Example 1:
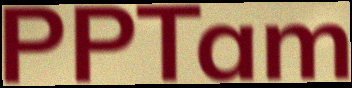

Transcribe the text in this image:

PPTam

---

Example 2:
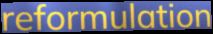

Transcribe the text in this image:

reformulation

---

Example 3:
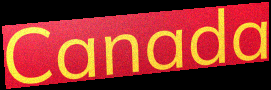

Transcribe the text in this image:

Canada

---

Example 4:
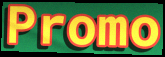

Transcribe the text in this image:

Promo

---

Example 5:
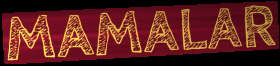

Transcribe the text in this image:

MAMALAR